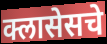
क्लासेसचे